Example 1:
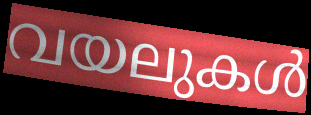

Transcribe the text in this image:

വയലുകൾ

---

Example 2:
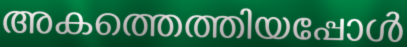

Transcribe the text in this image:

അകത്തെത്തിയപ്പോൾ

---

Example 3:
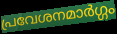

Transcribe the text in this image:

പ്രവേശനമാർഗ്ഗം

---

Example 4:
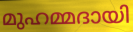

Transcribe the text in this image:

മുഹമ്മദായി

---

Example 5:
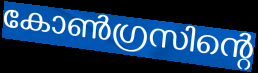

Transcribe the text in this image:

കോൺഗ്രസിന്റെ